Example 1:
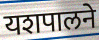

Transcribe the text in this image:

यशपालने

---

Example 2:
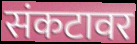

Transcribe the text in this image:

संकटावर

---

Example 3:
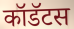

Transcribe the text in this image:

कॉडॅटस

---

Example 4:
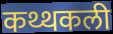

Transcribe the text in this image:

कथ्थकली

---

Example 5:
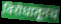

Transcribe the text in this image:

विरोधातूनच